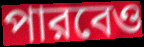
পারবেও